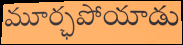
మూర్ఛపోయాడు